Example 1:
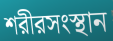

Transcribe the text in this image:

শরীরসংস্থান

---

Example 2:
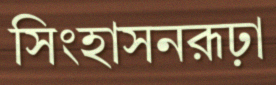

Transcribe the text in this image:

সিংহাসনরূঢ়া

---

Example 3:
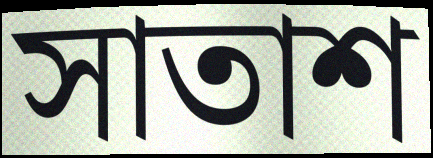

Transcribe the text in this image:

সাতাশ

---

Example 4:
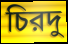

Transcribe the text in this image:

চিরদু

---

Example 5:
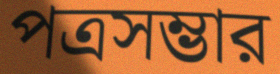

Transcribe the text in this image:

পত্রসম্ভার